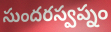
సుందరస్వప్నం